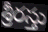
శ్రీరస్తు